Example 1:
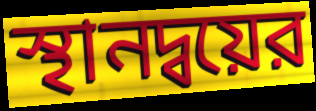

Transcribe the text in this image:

স্থানদ্বয়ের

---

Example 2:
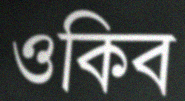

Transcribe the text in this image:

ওকিব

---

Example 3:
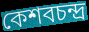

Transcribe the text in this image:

কেশবচন্দ্র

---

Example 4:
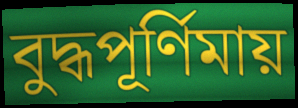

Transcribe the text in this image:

বুদ্ধপূর্ণিমায়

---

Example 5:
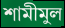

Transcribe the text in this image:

শামীমুল